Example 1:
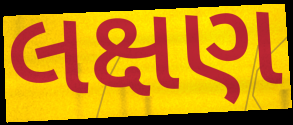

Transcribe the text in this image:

લક્ષણ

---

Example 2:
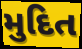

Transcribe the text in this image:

મુદિત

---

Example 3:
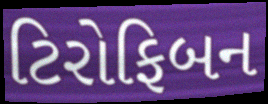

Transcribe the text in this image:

ટિરોફિબન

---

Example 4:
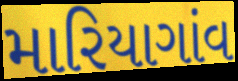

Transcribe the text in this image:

મારિયાગાંવ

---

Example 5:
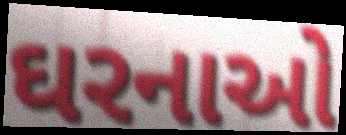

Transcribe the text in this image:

ઘરનાઓ